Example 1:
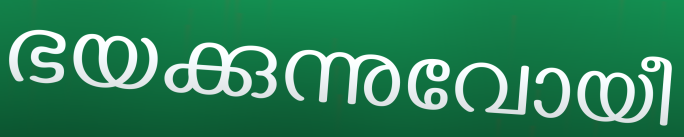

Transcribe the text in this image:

ഭയക്കുന്നുവോയീ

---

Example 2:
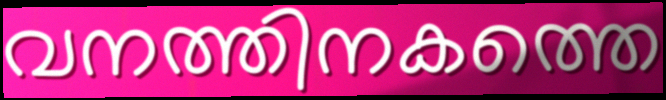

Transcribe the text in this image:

വനത്തിനകത്തെ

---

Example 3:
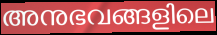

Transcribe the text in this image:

അനുഭവങ്ങളിലെ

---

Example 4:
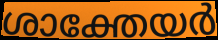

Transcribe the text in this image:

ശാക്തേയർ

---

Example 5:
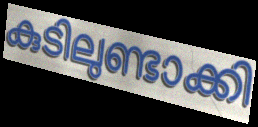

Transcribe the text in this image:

കുടിലുണ്ടാക്കി